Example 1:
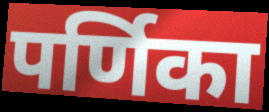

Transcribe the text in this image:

पर्णिका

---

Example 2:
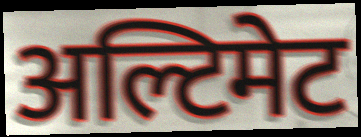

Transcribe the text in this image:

अल्टिमेट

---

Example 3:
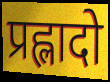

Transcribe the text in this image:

प्रह्लादो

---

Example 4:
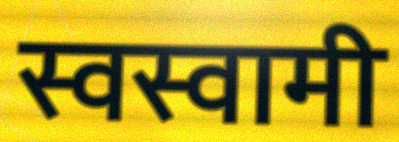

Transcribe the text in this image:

स्वस्वामी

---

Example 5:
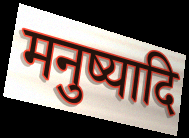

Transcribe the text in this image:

मनुष्यादि